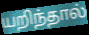
யறிந்தால்